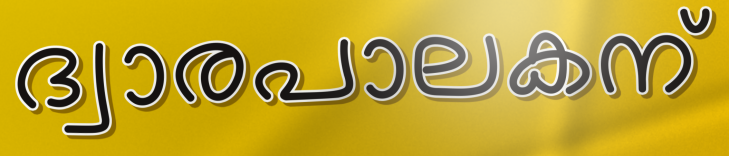
ദ്വാരപാലകന്